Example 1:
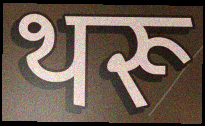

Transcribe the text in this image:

थरू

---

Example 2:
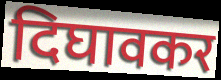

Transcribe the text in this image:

दिघावकर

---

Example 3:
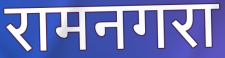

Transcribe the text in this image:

रामनगरा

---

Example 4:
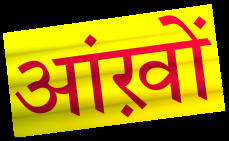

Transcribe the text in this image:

आंख़ों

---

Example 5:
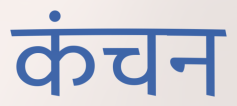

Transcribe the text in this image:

कंचन